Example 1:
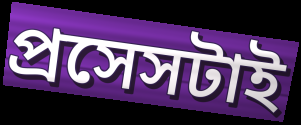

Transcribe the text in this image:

প্রসেসটাই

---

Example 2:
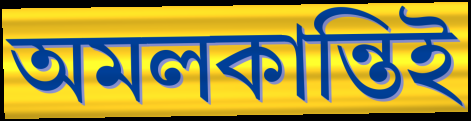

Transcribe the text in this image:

অমলকান্তিই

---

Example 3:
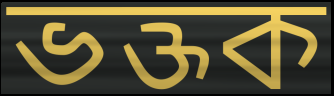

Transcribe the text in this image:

ভক্তক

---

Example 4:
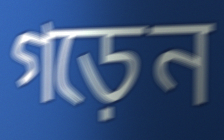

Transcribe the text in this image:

গড়েন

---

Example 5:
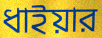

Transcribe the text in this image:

ধাইয়ার